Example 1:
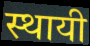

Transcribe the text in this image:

स्‍थायी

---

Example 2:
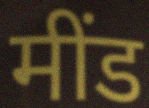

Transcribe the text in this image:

मींड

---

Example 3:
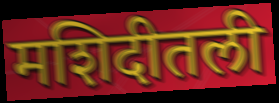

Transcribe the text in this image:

मशिदीतली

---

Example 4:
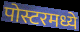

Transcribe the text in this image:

पोस्टरमध्ये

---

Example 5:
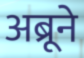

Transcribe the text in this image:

अब्रूने